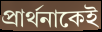
প্রার্থনাকেই